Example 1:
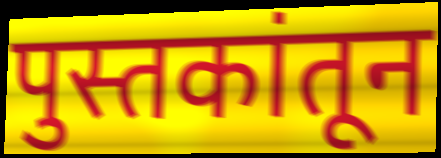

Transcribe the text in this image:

पुस्तकांतून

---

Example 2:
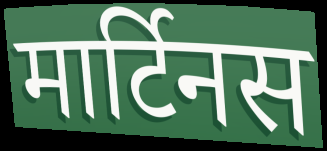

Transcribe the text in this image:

मार्टिनस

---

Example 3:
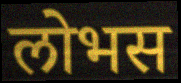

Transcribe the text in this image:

लोभस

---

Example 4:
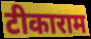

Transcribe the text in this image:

टीकाराम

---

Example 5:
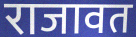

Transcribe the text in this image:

राजावत